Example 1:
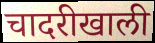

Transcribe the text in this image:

चादरीखाली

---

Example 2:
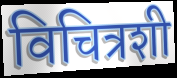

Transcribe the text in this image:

विचित्रशी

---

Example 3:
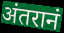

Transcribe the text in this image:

अंतरानं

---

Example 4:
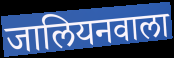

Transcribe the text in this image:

जालियनवाला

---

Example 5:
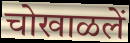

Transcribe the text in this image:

चोखाळलें